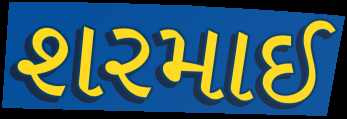
શરમાઈ